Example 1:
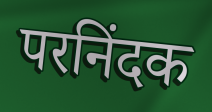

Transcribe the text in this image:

परनिंदक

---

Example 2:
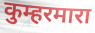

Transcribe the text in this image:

कुम्हरमारा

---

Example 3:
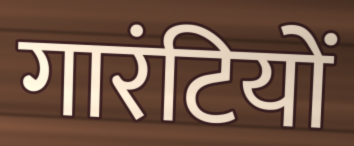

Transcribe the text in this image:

गारंटियों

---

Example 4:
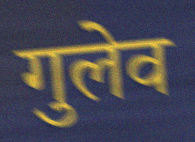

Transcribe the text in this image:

गुलेव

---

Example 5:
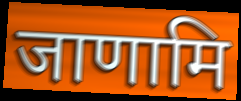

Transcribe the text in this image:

जाणामि